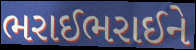
ભરાઈભરાઈને